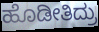
ಹೊಡೀತಿದ್ರು